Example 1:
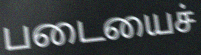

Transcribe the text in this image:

படையைச்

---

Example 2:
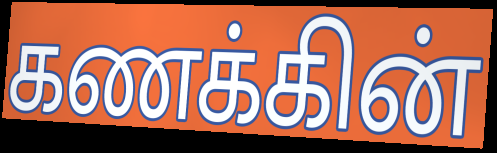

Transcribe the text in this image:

கணக்கின்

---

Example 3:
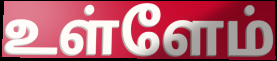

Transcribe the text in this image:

உள்ளேம்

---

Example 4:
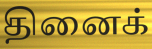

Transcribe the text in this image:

தினைக்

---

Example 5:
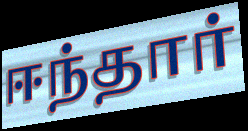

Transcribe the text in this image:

ஈந்தார்